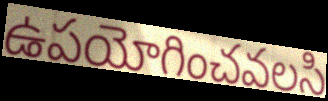
ఉపయోగించవలసి